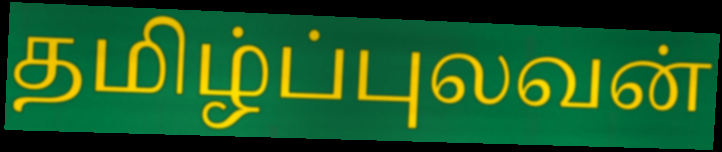
தமிழ்ப்புலவன்